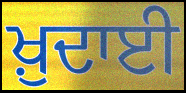
ਖ਼ੁਦਾਈ